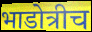
भाडोत्रीच